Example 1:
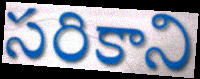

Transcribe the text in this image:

సరికాని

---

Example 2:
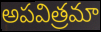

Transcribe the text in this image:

అపవిత్రమా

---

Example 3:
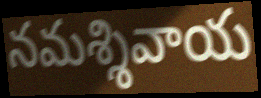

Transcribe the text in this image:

నమశ్శివాయ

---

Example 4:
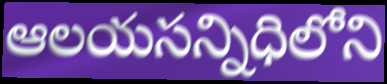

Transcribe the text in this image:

ఆలయసన్నిధిలోని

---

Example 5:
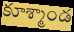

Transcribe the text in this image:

కూశ్మాండ